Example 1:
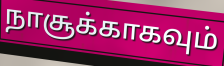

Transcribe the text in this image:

நாசூக்காகவும்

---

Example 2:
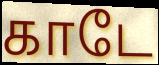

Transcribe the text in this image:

காடே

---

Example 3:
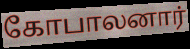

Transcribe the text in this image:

கோபாலனார்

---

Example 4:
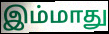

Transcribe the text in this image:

இம்மாது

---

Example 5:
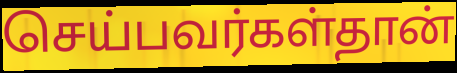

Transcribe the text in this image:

செய்பவர்கள்தான்